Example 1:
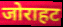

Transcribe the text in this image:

जोराहट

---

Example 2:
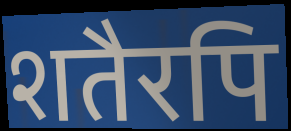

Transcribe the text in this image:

शतैरपि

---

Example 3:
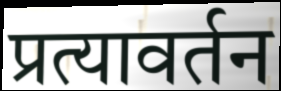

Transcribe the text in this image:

प्रत्‍यावर्तन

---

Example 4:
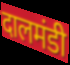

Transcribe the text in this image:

दालमंडी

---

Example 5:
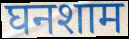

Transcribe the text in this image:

घनशाम